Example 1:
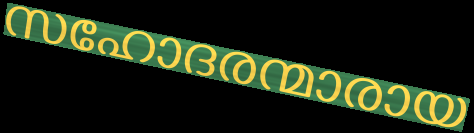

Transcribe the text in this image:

സഹോദരന്മാരായ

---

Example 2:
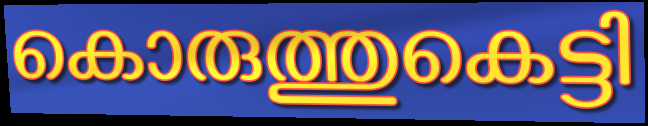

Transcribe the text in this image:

കൊരുത്തുകെട്ടി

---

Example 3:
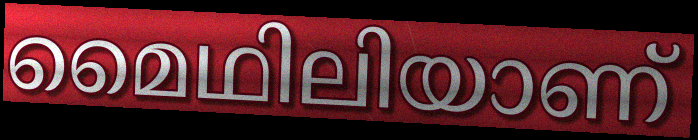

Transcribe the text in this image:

മൈഥിലിയാണ്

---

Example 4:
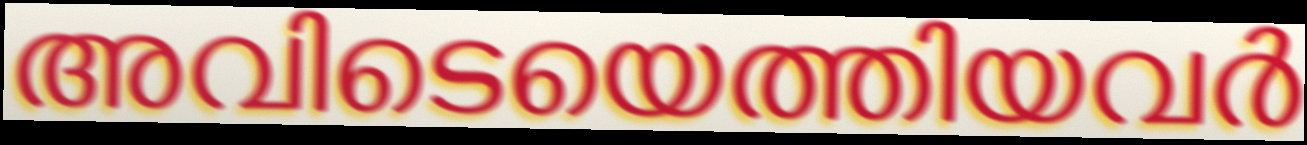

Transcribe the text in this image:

അവിടെയെത്തിയവർ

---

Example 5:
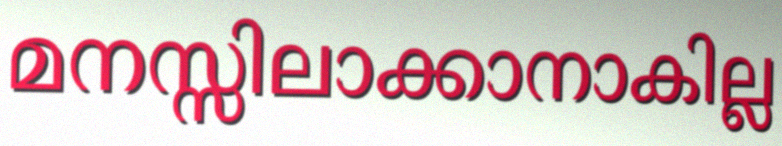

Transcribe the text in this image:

മനസ്സിലാക്കാനാകില്ല